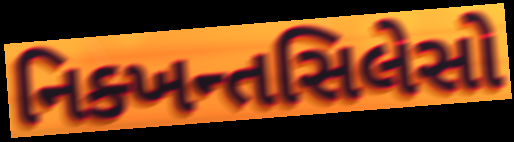
નિક્ખન્તસિલેસો